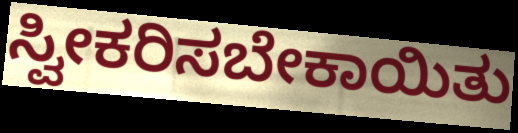
ಸ್ವೀಕರಿಸಬೇಕಾಯಿತು